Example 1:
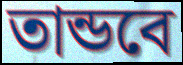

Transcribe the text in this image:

তান্ডবে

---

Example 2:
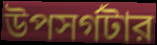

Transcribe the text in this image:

উপসর্গটার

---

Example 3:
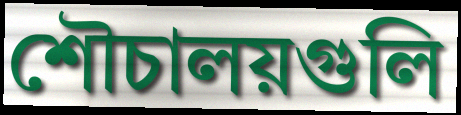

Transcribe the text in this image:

শৌচালয়গুলি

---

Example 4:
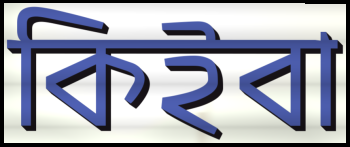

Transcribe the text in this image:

কিইবা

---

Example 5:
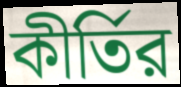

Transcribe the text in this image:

কীর্তির